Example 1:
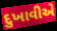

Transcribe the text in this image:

દુખાવીએ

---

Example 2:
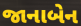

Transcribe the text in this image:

જાનાબેન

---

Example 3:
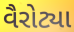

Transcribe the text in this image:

વૈરોટ્યા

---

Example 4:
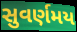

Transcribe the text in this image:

સુવર્ણમય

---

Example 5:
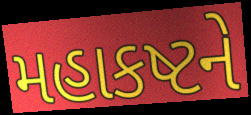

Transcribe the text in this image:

મહાકષ્ટને